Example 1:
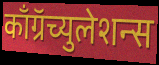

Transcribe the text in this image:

काँग्रॅच्युलेशन्स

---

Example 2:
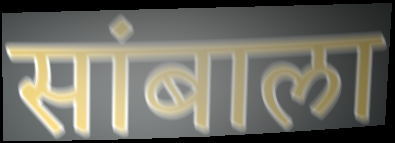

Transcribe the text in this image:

सांबाला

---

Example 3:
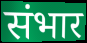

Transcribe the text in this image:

संभार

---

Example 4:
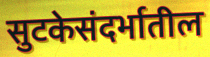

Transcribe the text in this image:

सुटकेसंदर्भातील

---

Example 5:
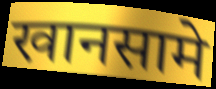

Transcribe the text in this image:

खानसामे